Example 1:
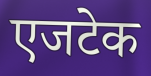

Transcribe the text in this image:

एजटेक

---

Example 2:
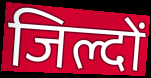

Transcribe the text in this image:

जिल्दों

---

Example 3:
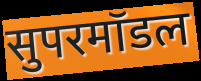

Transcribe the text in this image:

सुपरमॉडल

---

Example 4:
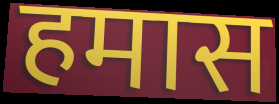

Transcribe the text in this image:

हमास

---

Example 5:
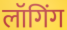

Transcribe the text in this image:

लॉगिंग